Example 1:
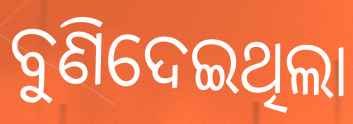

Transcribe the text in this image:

ବୁଣିଦେଇଥିଲା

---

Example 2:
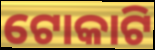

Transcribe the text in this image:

ଟୋକାଟି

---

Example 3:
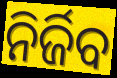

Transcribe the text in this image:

ନିର୍ଜିବ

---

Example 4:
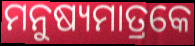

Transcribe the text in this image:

ମନୁଷ୍ୟମାତ୍ରକେ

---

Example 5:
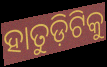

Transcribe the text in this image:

ହାତୁଡ଼ିଟିକୁ